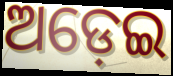
ଅଡ଼େଇ